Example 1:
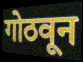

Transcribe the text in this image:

गोठवून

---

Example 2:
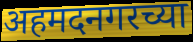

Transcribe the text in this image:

अहमदनगरच्या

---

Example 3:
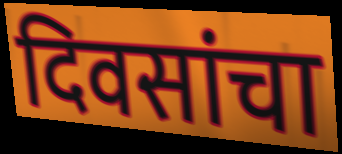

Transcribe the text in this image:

दिवसांचा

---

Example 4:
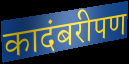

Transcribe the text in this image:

कादंबरीपण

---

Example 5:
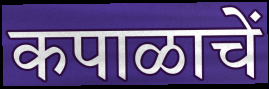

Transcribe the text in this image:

कपाळाचें